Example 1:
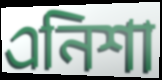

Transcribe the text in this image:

এনিশা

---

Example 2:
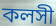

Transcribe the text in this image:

কলসী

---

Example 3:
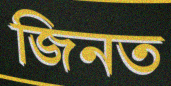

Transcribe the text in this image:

জিনত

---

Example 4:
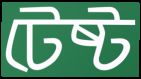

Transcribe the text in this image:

টেষ্ট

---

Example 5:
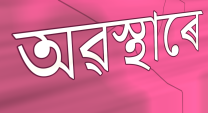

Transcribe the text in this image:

অৱস্থাৰে